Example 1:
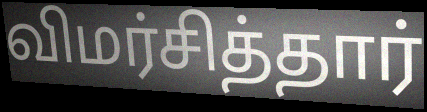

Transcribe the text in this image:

விமர்சித்தார்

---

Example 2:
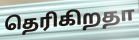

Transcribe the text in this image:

தெரிகிறதா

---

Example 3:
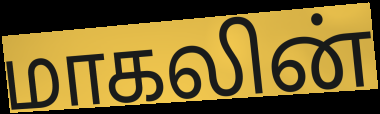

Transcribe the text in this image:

மாகலின்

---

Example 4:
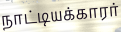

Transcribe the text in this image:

நாட்டியக்காரர்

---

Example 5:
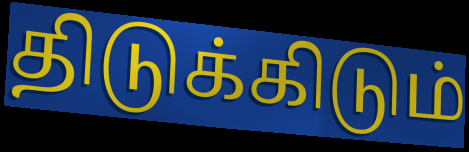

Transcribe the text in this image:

திடுக்கிடும்